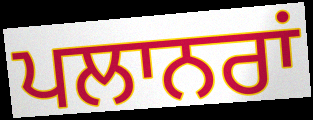
ਪਲਾਨਰਾਂ